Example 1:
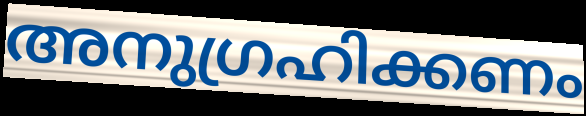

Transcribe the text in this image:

അനുഗ്രഹിക്കണം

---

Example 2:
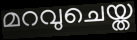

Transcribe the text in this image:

മറവുചെയ്ത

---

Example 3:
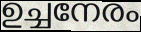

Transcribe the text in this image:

ഉച്ചനേരം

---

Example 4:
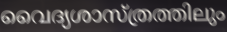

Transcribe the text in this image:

വൈദ്യശാസ്ത്രത്തിലും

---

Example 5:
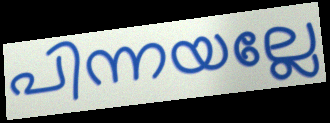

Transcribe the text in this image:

പിന്നയല്ലേ